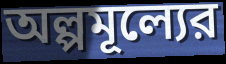
অল্পমূল্যের